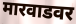
मारवाडवर